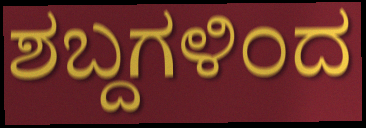
ಶಬ್ದಗಳಿಂದ